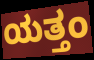
ಯತ್ತಂ